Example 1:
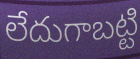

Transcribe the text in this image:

లేదుగాబట్టి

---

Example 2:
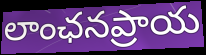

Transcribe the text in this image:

లాంఛనప్రాయ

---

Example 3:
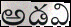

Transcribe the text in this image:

అడవి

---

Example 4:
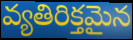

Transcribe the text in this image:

వ్యతిరిక్తమైన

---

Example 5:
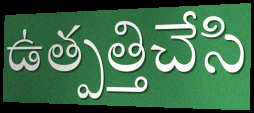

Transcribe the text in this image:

ఉత్పత్తిచేసి